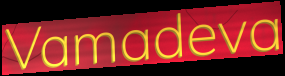
Vamadeva